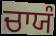
ਚਾਯੰ